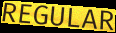
REGULAR